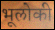
भूलोकी